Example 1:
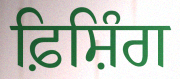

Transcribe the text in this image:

ਫ਼ਿਸ਼ਿੰਗ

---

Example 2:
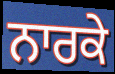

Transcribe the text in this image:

ਨਾਰਕੇ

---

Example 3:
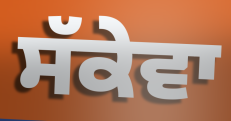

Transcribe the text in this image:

ਸੱਕੇਵਾ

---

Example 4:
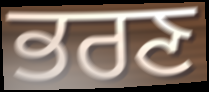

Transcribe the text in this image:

ਭਰਣ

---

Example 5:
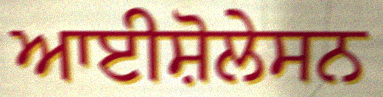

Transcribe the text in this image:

ਆਈਸ਼ੋਲੇਸਨ